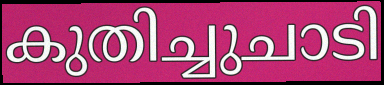
കുതിച്ചുചാടി